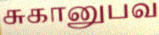
சுகானுபவ